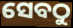
ସେବଠୁ